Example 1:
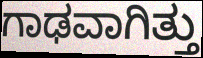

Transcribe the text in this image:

ಗಾಢವಾಗಿತ್ತು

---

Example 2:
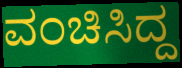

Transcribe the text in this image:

ವಂಚಿಸಿದ್ದ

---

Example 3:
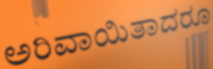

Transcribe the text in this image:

ಅರಿವಾಯಿತಾದರೂ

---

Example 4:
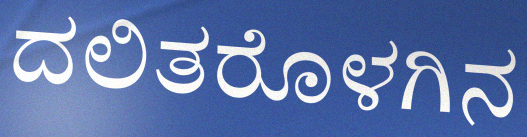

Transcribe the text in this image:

ದಲಿತರೊಳಗಿನ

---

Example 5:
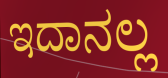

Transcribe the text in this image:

ಇದಾನಲ್ಲ